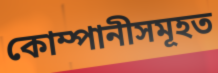
কোম্পানীসমূহত